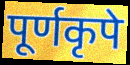
पूर्णकृपे